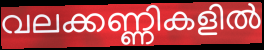
വലക്കണ്ണികളിൽ